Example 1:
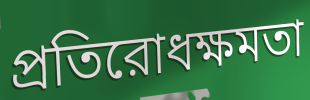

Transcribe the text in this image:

প্রতিরোধক্ষমতা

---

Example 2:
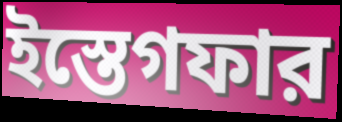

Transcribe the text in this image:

ইস্তেগফার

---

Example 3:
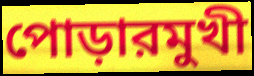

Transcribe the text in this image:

পোড়ারমুখী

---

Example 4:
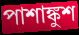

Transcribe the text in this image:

পাশাঙ্কুশ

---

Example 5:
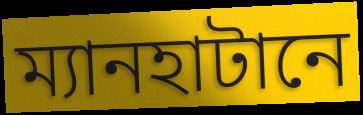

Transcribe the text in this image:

ম্যানহাটানে